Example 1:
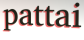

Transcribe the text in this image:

pattai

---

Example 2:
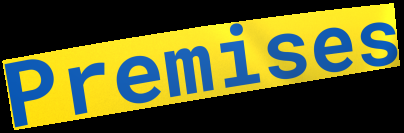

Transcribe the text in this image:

Premises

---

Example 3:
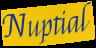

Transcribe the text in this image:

Nuptial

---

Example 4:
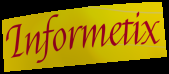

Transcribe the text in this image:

Informetix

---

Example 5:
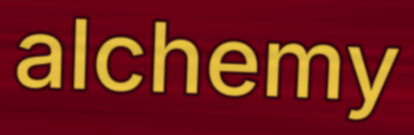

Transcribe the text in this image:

alchemy